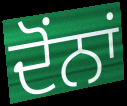
ਦੋਂਨਾਂ